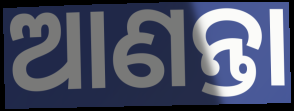
ଆଣନ୍ତା